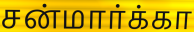
சன்மார்க்கா